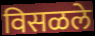
विसळले